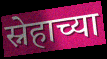
स्नेहाच्या